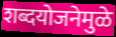
शब्दयोजनेमुळे